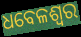
ଧବେଳଶ୍ୱର